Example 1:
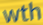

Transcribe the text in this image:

wth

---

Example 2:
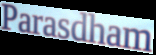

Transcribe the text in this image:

Parasdham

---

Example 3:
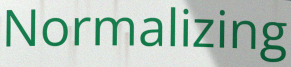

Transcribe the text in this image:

Normalizing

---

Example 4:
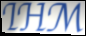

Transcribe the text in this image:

IHM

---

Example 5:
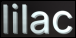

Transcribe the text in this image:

lilac